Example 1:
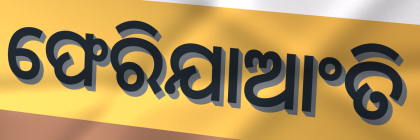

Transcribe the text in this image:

ଫେରିଯାଆଂତି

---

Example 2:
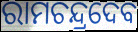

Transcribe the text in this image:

ରାମଚନ୍ଦ୍ରଦେବ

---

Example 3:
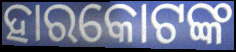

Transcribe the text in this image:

ହାରକୋଟଙ୍କ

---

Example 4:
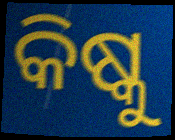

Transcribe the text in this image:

କିଷ୍କୁ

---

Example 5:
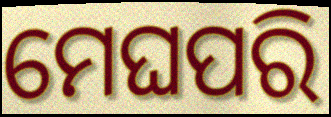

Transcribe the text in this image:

ମେଘପରି